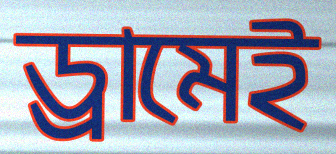
ড্রামেই